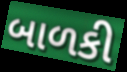
બાળકી